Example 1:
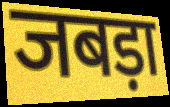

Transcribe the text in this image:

जबड़ा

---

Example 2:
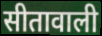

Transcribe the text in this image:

सीतावाली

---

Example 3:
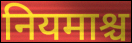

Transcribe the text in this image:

नियमाश्च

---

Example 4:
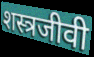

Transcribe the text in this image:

शस्त्रजीवी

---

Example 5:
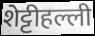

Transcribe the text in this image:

शेट्टीहल्ली